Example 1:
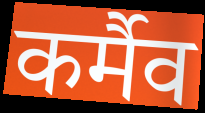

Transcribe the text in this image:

कर्मैव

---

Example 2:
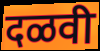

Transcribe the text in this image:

दळवी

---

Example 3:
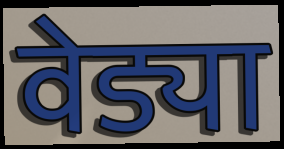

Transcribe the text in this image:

वेड्या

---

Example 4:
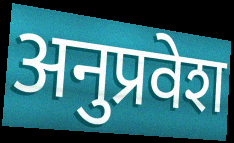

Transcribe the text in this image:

अनुप्रवेश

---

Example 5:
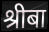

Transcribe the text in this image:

श्रीबा